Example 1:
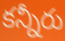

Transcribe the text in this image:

కన్నీరు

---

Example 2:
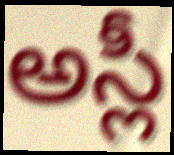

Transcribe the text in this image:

అస్లీ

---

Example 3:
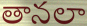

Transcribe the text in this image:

తానలా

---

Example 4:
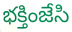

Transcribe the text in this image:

భక్తింజేసి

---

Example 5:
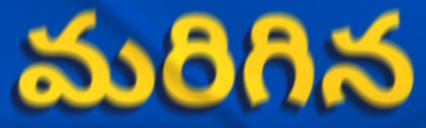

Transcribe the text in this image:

మరిగిన